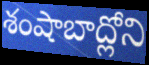
శంషాబాద్లోని